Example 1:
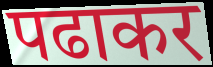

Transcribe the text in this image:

पढाकर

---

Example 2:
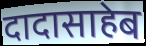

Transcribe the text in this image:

दादासाहेब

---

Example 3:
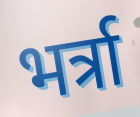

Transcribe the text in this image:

भर्त्रा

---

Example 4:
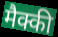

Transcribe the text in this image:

मैक्की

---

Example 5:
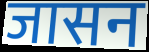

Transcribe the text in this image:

जासन